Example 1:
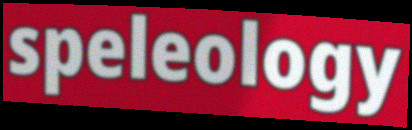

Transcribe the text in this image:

speleology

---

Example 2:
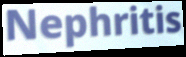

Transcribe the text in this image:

Nephritis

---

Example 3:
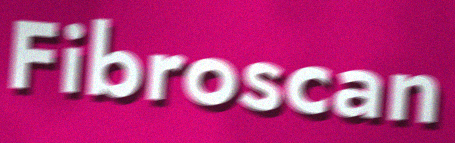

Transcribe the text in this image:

Fibroscan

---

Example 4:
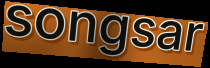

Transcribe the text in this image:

songsar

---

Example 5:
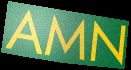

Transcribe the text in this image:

AMN